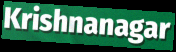
Krishnanagar